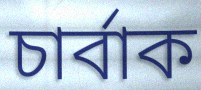
চার্বাক